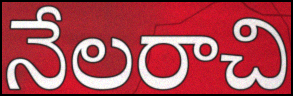
నేలరాచి